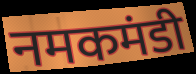
नमकमंडी